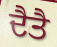
ਦੈਤੈ